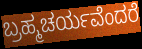
ಬ್ರಹ್ಮಚರ್ಯವೆಂದರೆ